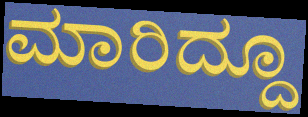
ಮಾರಿದ್ದೂ